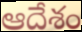
ఆదేశం